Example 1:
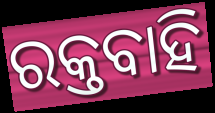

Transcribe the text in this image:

ରକ୍ତବାହି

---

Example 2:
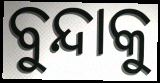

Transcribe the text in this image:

ବୁନ୍ଦାକୁ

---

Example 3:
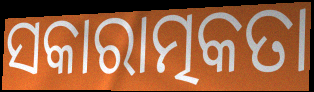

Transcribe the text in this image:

ସକାରାତ୍ମକତା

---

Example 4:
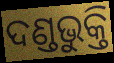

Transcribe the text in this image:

ଦଣ୍ଡଭୁକ୍ତି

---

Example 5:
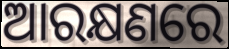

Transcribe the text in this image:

ଆରକ୍ଷଣରେ